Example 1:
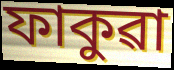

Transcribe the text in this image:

ফাকুৱা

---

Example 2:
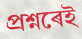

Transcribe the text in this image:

প্ৰশ্নৰেই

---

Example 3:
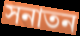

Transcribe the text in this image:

সনাতন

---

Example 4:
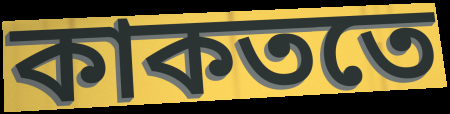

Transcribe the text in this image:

কাকততে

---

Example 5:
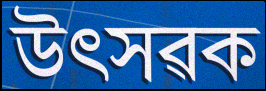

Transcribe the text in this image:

উৎসৱক